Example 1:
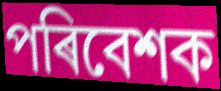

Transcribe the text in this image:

পৰিবেশক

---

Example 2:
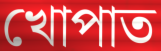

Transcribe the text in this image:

খোপাত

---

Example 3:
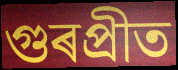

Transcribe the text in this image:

গুৰপ্ৰীত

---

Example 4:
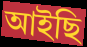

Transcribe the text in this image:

আইছি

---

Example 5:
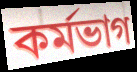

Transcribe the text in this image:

কৰ্মভাগ